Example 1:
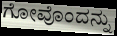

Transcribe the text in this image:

ಗೋವೊಂದನ್ನು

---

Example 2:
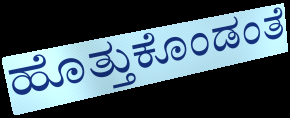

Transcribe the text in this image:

ಹೊತ್ತುಕೊಂಡಂತೆ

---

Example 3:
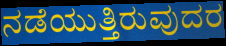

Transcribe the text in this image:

ನಡೆಯುತ್ತಿರುವುದರ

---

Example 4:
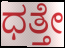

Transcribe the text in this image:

ಧತ್ತೇ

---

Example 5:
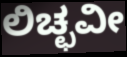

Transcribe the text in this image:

ಲಿಚ್ಛವೀ